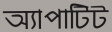
অ্যাপাটিট